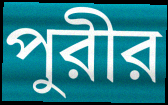
পুরীর